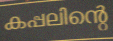
കപ്പലിന്റെ